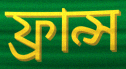
ফ্রান্স